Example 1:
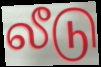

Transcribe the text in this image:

லீடு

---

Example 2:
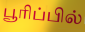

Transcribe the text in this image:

பூரிப்பில்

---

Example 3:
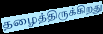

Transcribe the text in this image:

தழைத்திருக்கிறது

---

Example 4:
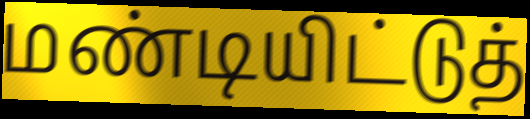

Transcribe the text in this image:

மண்டியிட்டுத்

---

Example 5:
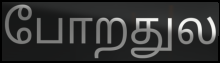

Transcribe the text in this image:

போறதுல